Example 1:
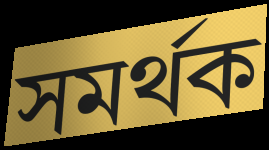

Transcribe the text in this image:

সমৰ্থক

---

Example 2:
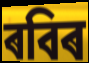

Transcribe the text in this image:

ৰবিৰ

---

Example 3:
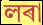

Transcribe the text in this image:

লৰা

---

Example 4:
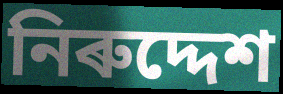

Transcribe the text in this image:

নিৰুদ্দেশ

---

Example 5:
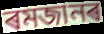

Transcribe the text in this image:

ৰমজানৰ